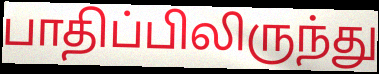
பாதிப்பிலிருந்து